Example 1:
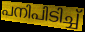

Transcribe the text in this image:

പനിപിടിച്ച്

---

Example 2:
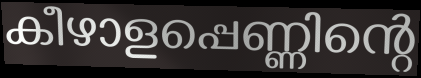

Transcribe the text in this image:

കീഴാളപ്പെണ്ണിന്റെ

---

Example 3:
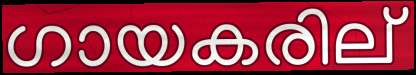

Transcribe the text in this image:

ഗായകരില്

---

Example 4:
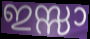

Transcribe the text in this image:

ഇസ്സാ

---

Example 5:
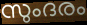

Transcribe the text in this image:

സുംദരം